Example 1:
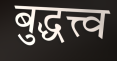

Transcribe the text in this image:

बुद्धत्त्व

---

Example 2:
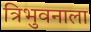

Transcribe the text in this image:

त्रिभुवनाला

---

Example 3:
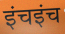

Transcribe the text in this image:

इंचइंच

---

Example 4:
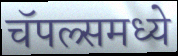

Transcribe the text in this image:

चॅपल्समध्ये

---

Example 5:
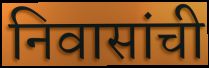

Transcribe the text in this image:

निवासांची